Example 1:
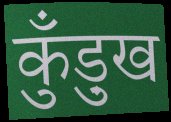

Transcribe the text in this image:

कुँड़ुख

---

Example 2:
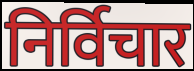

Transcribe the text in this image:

निर्विचार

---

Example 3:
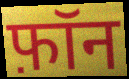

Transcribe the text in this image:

फ़ॉन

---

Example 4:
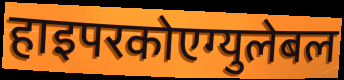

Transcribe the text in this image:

हाइपरकोएग्युलेबल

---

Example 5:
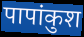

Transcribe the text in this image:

पापांकुश